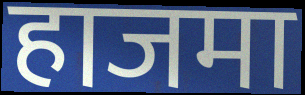
हाजमा